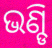
ଭଣ୍ଡି